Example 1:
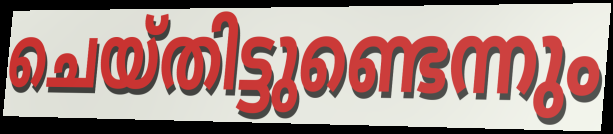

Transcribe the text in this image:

ചെയ്തിട്ടുണ്ടെന്നും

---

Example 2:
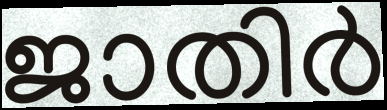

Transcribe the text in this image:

ജാതിർ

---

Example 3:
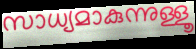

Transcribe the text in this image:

സാധ്യമാകുന്നുള്ളൂ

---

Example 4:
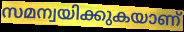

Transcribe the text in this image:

സമന്വയിക്കുകയാണ്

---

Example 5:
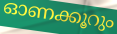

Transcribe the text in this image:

ഓണക്കൂറും